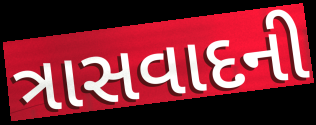
ત્રાસવાદની